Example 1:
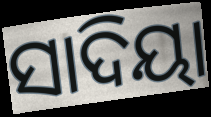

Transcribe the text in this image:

ସାଦିୟା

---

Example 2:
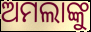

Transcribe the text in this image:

ଅମଲାଙ୍କୁ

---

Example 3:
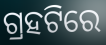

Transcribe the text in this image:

ଗ୍ରହଟିରେ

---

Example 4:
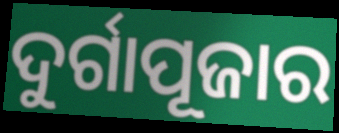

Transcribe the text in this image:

ଦୁର୍ଗାପୂଜାର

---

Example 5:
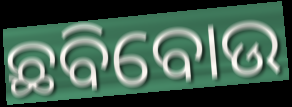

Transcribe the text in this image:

ଛବିବୋଉ